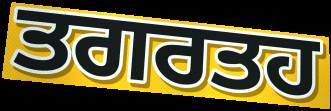
ਤਗਰਤਹ